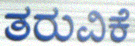
ತರುವಿಕೆ